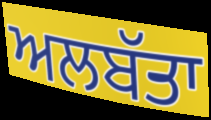
ਅਲਬੱਤਾ